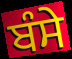
ਬੰਸੇ